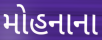
મોહનાના